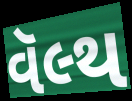
વૅલ્થ